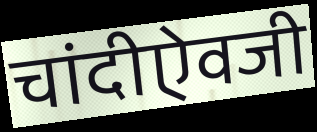
चांदीऐवजी